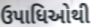
ઉપાધિઓથી